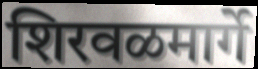
शिरवळमार्गे